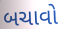
બચાવો